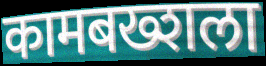
कामबख्शला